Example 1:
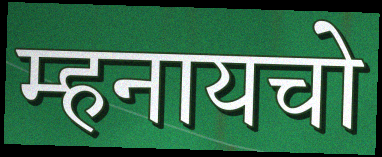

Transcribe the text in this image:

म्हनायचो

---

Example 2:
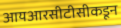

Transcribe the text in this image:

आयआरसीटीसीकडून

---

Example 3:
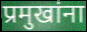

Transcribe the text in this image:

प्रमुखांना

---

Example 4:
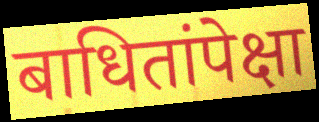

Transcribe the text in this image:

बाधितांपेक्षा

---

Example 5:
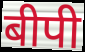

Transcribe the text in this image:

बीपी